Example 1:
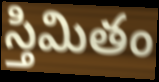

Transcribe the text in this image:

స్తిమితం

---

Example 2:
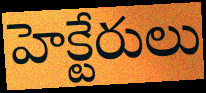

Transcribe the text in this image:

హెక్టేరులు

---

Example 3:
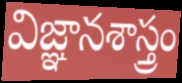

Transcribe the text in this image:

విజ్ఞానశాస్త్రం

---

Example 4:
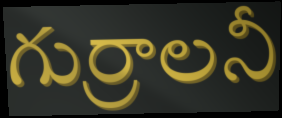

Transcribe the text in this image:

గుర్రాలనీ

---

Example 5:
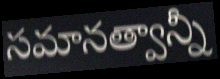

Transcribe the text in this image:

సమానత్వాన్నీ